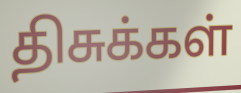
திசுக்கள்